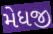
મેધજી